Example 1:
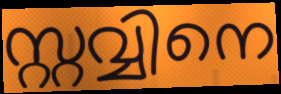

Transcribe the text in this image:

സ്റ്റവ്വിനെ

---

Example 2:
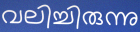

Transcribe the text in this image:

വലിച്ചിരുന്നു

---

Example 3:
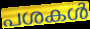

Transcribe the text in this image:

പശകൾ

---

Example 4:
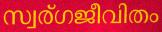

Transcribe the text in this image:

സ്വര്ഗജീവിതം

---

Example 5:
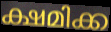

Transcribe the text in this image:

ക്ഷമിക്ക